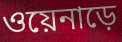
ওয়েনাড়ে